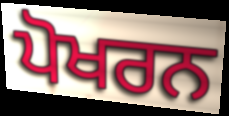
ਪੋਖਰਨ